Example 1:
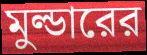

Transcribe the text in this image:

মুল্ডারের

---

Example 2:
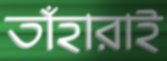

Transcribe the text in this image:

তাঁহারাই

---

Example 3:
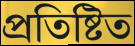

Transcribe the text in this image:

প্রতিষ্টিত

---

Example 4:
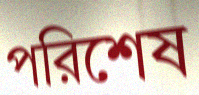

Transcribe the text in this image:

পরিশেষ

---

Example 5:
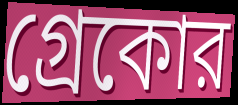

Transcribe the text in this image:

গ্রেকোর